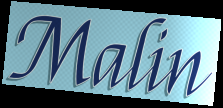
Malin